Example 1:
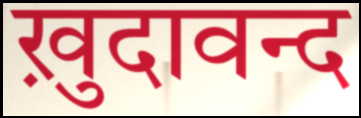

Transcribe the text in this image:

ख़ुदावन्द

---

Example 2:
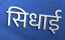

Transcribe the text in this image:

सिधाई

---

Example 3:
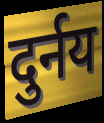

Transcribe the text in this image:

दुर्नय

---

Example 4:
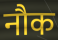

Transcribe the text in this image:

नौक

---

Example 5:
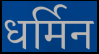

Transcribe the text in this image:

धर्मिन